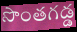
సొంతగడ్డ